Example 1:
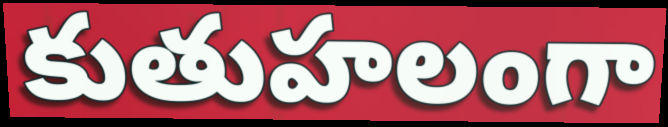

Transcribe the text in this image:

కుతుహలంగా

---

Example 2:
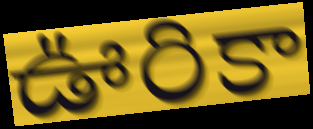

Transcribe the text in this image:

ఊరికా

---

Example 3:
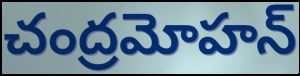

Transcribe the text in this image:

చంద్రమోహన్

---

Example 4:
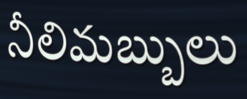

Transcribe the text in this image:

నీలిమబ్బులు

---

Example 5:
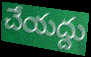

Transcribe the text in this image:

చేయద్దు